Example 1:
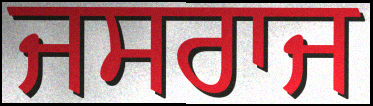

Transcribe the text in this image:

ਜਸਰਾਜ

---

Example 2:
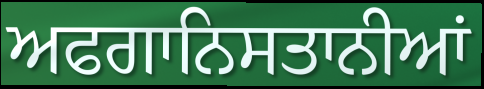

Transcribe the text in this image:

ਅਫਗਾਨਿਸਤਾਨੀਆਂ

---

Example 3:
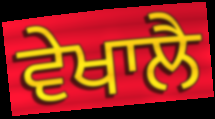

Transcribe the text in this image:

ਵੇਖਾਲੈ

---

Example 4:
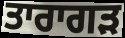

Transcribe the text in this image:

ਤਾਰਾਗੜ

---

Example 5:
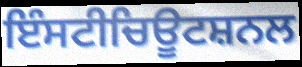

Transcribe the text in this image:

ਇੰਸਟੀਚਿਊਟਸ਼ਨਲ